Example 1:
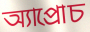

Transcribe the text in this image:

অ্যাপ্রোচ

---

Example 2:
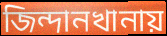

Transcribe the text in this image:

জিন্দানখানায়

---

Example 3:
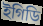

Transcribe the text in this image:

ইগিডি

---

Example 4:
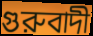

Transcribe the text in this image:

গুরুবাদী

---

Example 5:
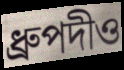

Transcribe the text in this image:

ধ্রুপদীও